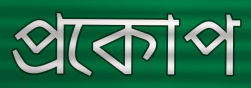
প্রকোপ